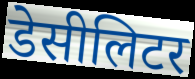
डेसीलिटर